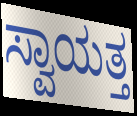
ಸ್ವಾಯತ್ತ